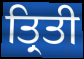
ਤ੍ਰਿਤੀ